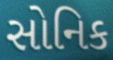
સોનિક